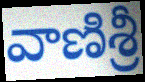
వాణిశ్రీ